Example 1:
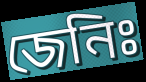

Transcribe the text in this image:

জেনিঃ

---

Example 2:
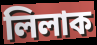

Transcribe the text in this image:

লিলাক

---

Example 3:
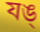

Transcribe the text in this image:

যঙ্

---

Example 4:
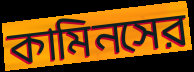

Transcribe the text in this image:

কামিনসের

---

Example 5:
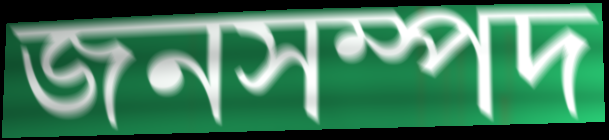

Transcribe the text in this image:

জনসম্পদ